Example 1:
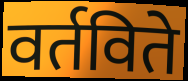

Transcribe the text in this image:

वर्तविते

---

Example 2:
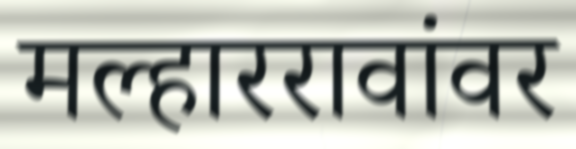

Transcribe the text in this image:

मल्हाररावांवर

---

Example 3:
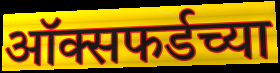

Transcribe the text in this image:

ऑक्सफर्डच्या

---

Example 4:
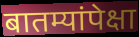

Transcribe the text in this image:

बातम्यांपेक्षा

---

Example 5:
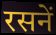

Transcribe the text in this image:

रसनें